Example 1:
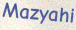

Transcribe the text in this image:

Mazyahi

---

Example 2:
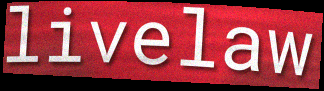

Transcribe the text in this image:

livelaw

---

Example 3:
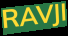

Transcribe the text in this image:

RAVJI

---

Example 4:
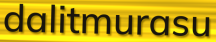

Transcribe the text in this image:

dalitmurasu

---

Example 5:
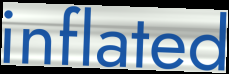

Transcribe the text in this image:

inflated